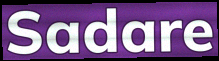
Sadare